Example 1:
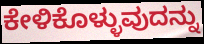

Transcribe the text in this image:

ಕೇಳಿಕೊಳ್ಳುವುದನ್ನು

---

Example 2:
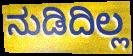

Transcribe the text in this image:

ನುಡಿದಿಲ್ಲ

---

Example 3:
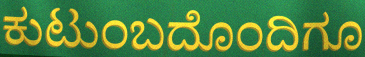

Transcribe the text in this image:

ಕುಟುಂಬದೊಂದಿಗೂ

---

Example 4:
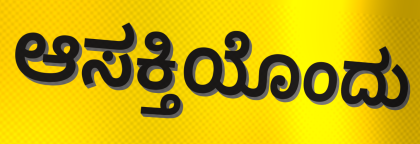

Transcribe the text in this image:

ಆಸಕ್ತಿಯೊಂದು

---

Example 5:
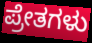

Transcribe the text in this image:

ಪ್ರೇತಗಳು